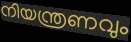
നിയന്ത്രണവും